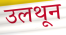
उलथून